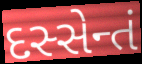
દસ્સેન્તં